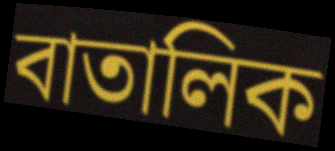
বাতালিক